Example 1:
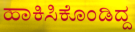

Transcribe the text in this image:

ಹಾಕಿಸಿಕೊಂಡಿದ್ದ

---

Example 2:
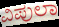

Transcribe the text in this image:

ವಿಪುಲಾ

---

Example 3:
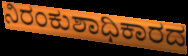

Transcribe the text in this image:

ನಿರಂಕುಶಾಧಿಕಾರದ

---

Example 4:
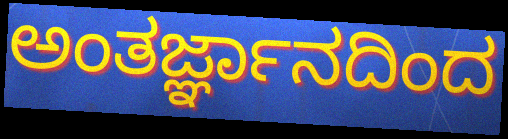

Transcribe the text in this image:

ಅಂತರ್ಜ್ಞಾನದಿಂದ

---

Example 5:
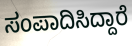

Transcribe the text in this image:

ಸಂಪಾದಿಸಿದ್ದಾರೆ